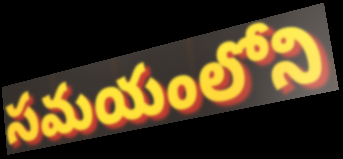
సమయంలోని